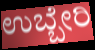
ಉಬ್ಬೇರಿ